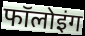
फॉलोइंग